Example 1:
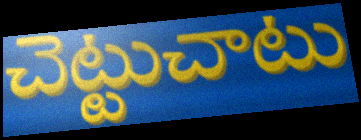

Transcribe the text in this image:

చెట్టుచాటు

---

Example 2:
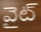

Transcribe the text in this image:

వైట్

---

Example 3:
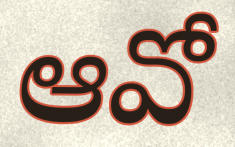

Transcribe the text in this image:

ఆవో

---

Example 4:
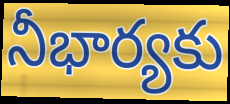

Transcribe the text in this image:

నీభార్యకు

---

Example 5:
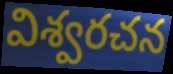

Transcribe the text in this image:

విశ్వరచన